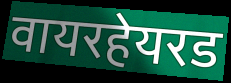
वायरहेयरड